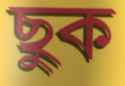
ছুক